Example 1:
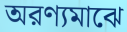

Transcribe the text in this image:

অরণ্যমাঝে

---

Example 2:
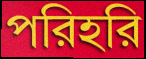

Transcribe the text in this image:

পরিহরি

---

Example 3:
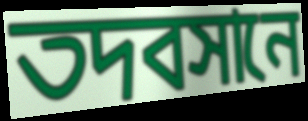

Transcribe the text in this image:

তদবসানে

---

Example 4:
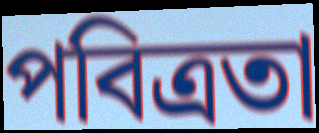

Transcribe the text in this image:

পবিত্রতা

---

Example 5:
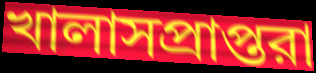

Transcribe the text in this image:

খালাসপ্রাপ্তরা